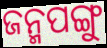
ଜନ୍ମପଙ୍ଗୁ